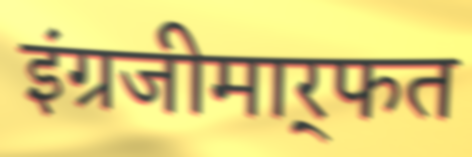
इंग्रजीमार्फत